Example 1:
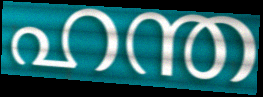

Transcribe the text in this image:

ഹന്ത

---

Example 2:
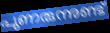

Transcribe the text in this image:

പുണരുന്നുണ്ട്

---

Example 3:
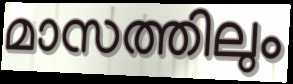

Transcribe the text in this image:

മാസത്തിലും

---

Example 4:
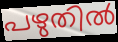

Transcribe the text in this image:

പഴുതിൽ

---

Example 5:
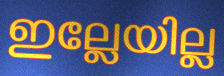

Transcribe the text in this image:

ഇല്ലേയില്ല